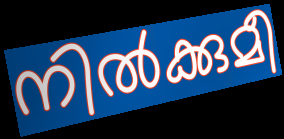
നിൽക്കുമീ